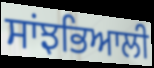
ਸਾਂਝਭਿਆਲੀ